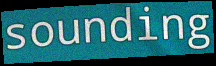
sounding